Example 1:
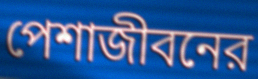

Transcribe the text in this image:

পেশাজীবনের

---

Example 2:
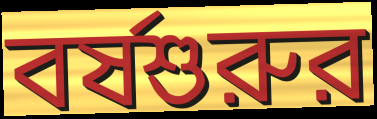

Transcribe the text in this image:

বর্ষশুরুর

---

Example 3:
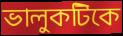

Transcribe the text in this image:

ভালুকটিকে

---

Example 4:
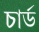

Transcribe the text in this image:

চার্ড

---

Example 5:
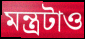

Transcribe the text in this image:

মন্ত্রটাও